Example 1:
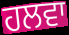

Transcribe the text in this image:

ਹਲਵਾ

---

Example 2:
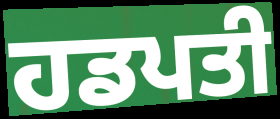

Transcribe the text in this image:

ਹਡਪਤੀ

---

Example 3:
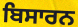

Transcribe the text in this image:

ਬਿਸਾਰਨ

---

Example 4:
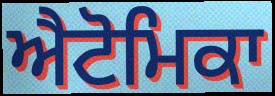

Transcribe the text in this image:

ਐਟੋਮਿਕਾ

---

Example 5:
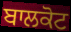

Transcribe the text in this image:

ਬਾਲਕੋਟ